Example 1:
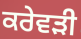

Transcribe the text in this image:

ਕਰੇਵੜੀ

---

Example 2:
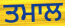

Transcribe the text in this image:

ਤਮਾਲ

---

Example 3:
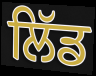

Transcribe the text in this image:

ਲਿੱਡ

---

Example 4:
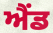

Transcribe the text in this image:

ਐੰਡ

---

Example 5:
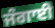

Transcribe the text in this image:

ਜੰਗਾਈ